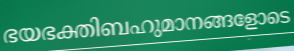
ഭയഭക്തിബഹുമാനങ്ങളോടെ